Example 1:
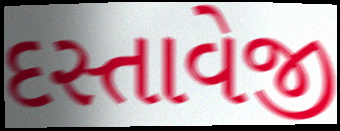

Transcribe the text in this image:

દસ્તાવેજી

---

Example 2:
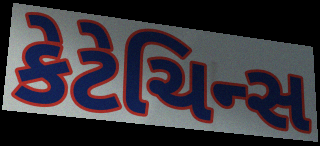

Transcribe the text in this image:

કેટેચિન્સ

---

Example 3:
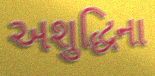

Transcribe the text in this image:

અશુદ્ધિના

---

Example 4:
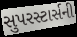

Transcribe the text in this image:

સુપરસ્ટાર્સની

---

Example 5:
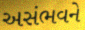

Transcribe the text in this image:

અસંભવને